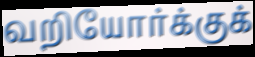
வறியோர்க்குக்